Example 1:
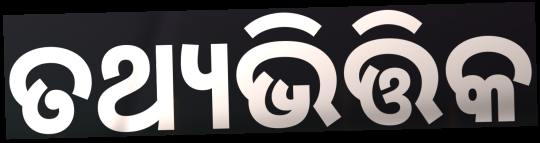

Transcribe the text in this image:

ତଥ୍ୟଭିତ୍ତିକ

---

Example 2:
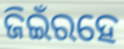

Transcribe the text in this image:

ଜିଇଁରହେ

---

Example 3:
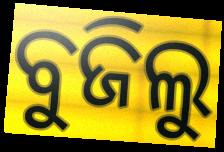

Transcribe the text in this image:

ବୁଜିଲୁ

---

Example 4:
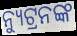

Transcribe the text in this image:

ନ୍ୟୁଟ୍ରନଙ୍କ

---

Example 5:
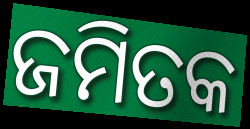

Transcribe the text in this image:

ଜମିତକ